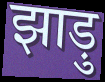
झाड़ु